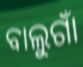
ବାଲୁଗାଁ